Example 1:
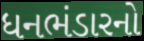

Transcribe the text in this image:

ધનભંડારનો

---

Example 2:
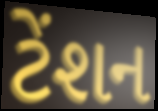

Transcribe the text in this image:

ટેંશન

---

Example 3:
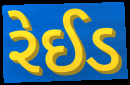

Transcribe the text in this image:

રેઈડ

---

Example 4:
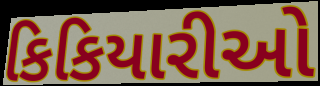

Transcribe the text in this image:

કિકિયારીઓ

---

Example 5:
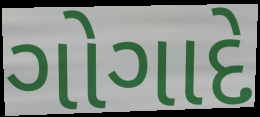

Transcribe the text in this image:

ગોગાદે